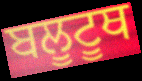
ਬਲੂਟੂਥ